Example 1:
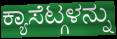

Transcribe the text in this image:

ಕ್ಯಾಸೆಟ್ಗಳನ್ನು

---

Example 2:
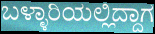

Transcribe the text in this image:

ಬಳ್ಳಾರಿಯಲ್ಲಿದ್ದಾಗ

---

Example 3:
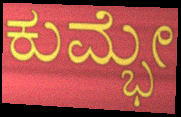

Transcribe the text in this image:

ಕುಮ್ಭೇ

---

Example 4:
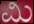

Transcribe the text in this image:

ಮಿ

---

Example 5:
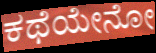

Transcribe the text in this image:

ಕಥೆಯೇನೋ